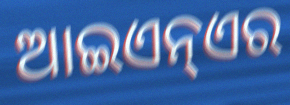
ଆଇଏନ୍ଏର